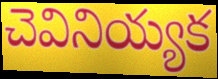
చెవినియ్యక